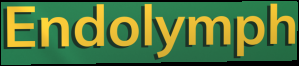
Endolymph